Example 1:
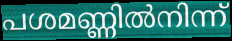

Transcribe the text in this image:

പശമണ്ണിൽനിന്ന്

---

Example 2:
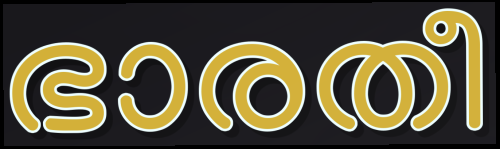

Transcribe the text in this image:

ഭാരതീ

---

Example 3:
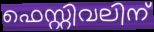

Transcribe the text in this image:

ഫെസ്റ്റിവലിന്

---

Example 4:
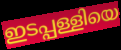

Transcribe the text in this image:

ഇടപ്പള്ളിയെ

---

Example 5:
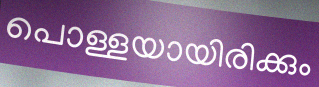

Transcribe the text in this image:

പൊള്ളയായിരിക്കും